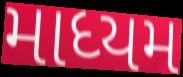
માધ્યમ